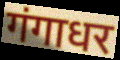
गंगाधर